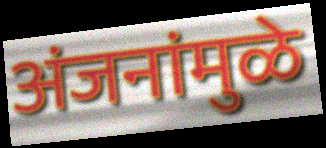
अंजनांमुळे